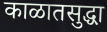
काळातसुद्धा